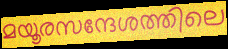
മയൂരസന്ദേശത്തിലെ